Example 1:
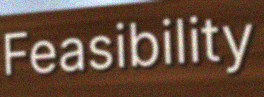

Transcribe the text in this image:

Feasibility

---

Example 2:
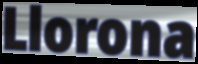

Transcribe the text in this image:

Llorona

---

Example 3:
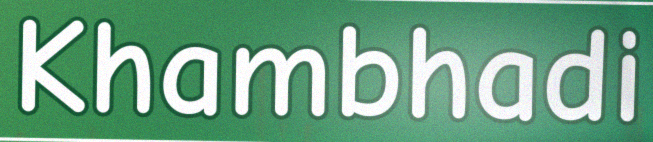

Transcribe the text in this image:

Khambhadi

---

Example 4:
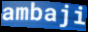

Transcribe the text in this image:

ambaji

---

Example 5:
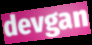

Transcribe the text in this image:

devgan